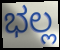
ಭಲ್ಲ